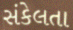
સંકેલતા